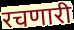
रचणारी